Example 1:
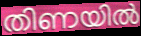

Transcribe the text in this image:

തിണയിൽ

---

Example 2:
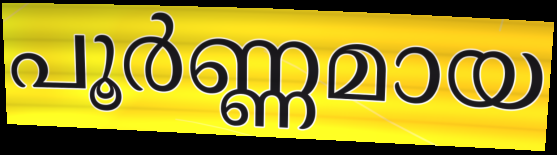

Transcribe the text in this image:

പൂർണ്ണമായ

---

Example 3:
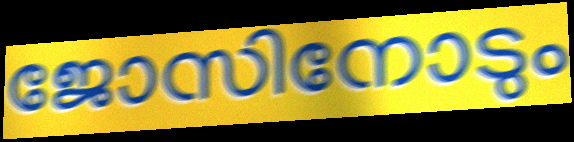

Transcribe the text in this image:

ജോസിനോടും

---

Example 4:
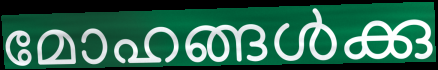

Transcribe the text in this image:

മോഹങ്ങൾക്കു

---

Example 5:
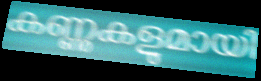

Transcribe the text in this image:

കണ്ണുകളുമായി